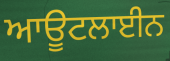
ਆਊਟਲਾਈਨ